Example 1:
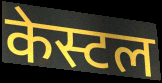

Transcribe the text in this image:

केस्टल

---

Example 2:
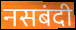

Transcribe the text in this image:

नसबंदी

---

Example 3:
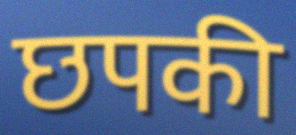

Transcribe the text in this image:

छपकी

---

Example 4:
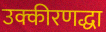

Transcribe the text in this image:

उक्कीरणद्धा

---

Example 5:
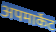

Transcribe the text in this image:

अपमार्केट